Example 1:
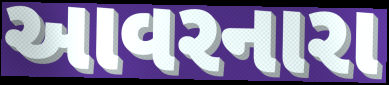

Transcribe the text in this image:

આવરનારા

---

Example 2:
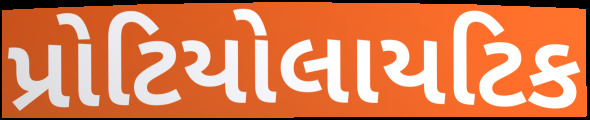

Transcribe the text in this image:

પ્રોટિયોલાયટિક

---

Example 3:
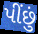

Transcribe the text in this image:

પીંછું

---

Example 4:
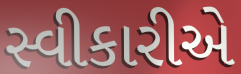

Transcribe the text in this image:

સ્વીકારીએ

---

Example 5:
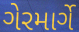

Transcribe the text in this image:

ગેરમાર્ગે